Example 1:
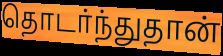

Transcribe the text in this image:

தொடர்ந்துதான்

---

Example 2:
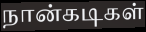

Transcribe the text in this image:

நான்கடிகள்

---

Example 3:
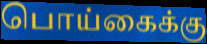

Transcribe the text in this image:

பொய்கைக்கு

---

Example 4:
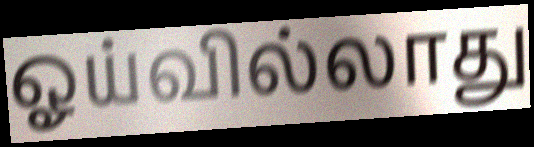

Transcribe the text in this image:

ஓய்வில்லாது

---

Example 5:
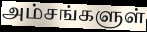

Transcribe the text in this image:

அம்சங்களுள்